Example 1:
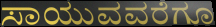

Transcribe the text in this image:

ಸಾಯುವವರೆಗೂ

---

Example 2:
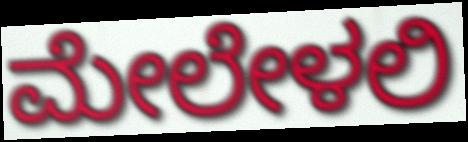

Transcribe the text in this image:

ಮೇಲೇಳಲಿ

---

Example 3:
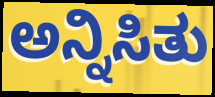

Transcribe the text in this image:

ಅನ್ನಿಸಿತು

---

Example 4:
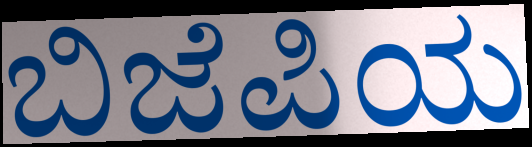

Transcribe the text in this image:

ಬಿಜೆಪಿಯ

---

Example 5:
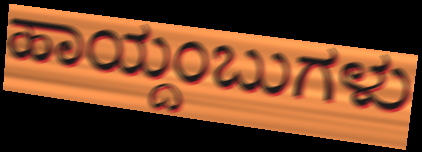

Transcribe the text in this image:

ಹಾಯ್ದಂಬುಗಳು